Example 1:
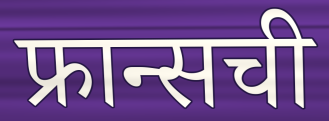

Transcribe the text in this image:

फ्रान्सची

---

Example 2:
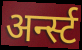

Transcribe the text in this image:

अर्न्स्ट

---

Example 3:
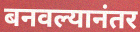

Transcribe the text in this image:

बनवल्यानंतर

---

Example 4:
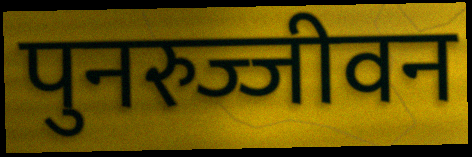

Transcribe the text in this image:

पुनरुज्‍जीवन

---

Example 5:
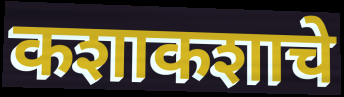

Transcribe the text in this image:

कशाकशाचे